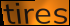
tires